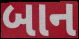
બાન